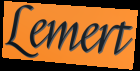
Lemert